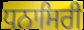
ਧਨਾਸਿਰੀ